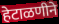
हेटाळणीने